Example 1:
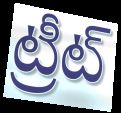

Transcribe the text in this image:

ట్రీట్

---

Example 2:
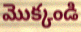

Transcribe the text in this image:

మొక్కండి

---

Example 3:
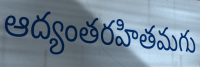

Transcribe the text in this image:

ఆద్యంతరహితమగు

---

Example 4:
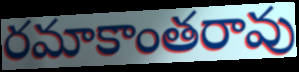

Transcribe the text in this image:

రమాకాంతరావు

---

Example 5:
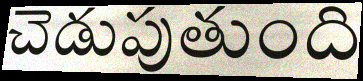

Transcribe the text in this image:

చెడుపుతుంది